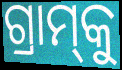
ଗ୍ରାମ୍‌କୁ